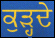
ਕੁੜ੍ਹਦੇ